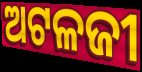
ଅଟଳଜୀ